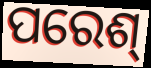
ପରେଶ୍